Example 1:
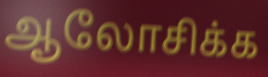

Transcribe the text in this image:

ஆலோசிக்க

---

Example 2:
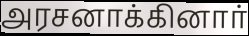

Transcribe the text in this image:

அரசனாக்கினார்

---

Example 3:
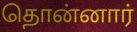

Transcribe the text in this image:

தொன்னார்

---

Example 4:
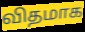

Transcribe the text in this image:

விதமாக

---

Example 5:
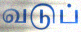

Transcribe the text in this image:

வடுப்